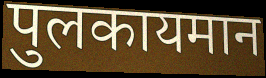
पुलकायमान